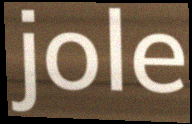
jole